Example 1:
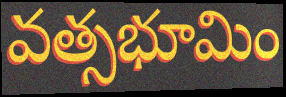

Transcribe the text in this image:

వత్సభూమిం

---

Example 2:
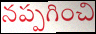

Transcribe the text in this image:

నప్పగించి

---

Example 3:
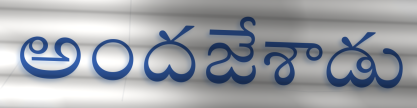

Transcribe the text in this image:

అందజేశాడు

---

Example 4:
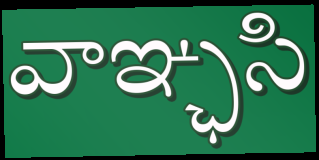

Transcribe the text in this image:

వాఞ్ఛసి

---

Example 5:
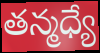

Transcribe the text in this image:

తన్మధ్యే